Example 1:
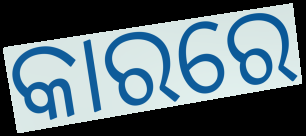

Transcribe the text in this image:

କାରରେ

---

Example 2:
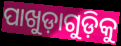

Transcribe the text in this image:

ପାଖୁଡ଼ାଗୁଡ଼ିକୁ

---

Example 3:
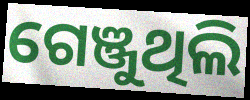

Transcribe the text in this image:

ଗେଞ୍ଜୁଥିଲି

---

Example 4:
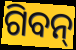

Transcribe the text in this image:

ଗିବନ୍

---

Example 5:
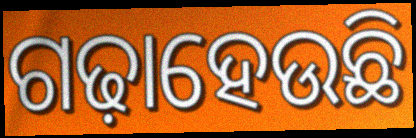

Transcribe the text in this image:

ଗଢ଼ାହେଉଛି